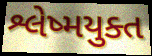
શ્લેષ્મયુક્ત